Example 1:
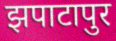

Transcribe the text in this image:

झपाटापुर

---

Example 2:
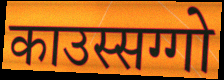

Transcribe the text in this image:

काउस्सग्गो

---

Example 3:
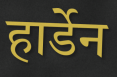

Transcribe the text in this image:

हार्डेन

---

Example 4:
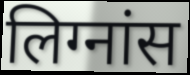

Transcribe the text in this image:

लिग्नांस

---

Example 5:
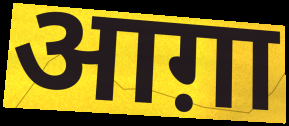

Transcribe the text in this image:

आग़ा